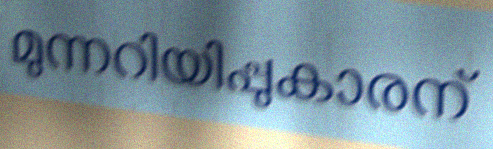
മുന്നറിയിപ്പുകാരന്